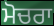
ਮੋਚਰਾ